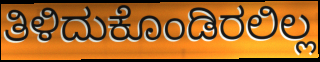
ತಿಳಿದುಕೊಂಡಿರಲಿಲ್ಲ